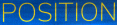
POSITION